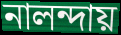
নালন্দায়